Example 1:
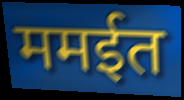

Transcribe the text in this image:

ममईत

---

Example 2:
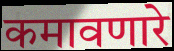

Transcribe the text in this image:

कमावणारे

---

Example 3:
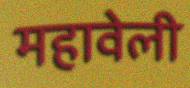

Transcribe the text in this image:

महावेली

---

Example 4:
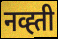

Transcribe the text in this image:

नव्ह्ती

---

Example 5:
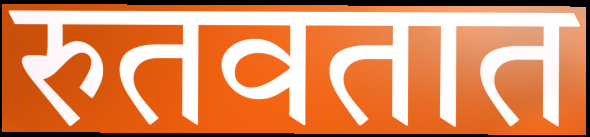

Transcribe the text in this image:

रुतवतात